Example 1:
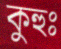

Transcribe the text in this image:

কুহুঃ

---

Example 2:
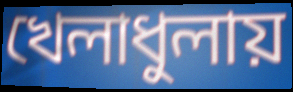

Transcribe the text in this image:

খেলাধুলায়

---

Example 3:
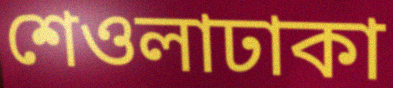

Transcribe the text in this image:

শেওলাঢাকা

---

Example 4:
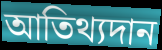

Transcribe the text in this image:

আতিথ্যদান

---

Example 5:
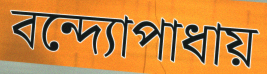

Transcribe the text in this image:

বন্দ্যোপাধায়